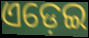
ଏଡ଼େଇ